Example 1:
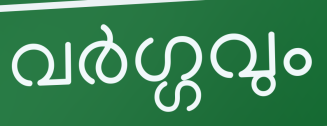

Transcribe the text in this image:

വർഗ്ഗവും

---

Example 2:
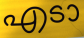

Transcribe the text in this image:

എടാ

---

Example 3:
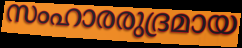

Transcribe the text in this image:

സംഹാരരുദ്രമായ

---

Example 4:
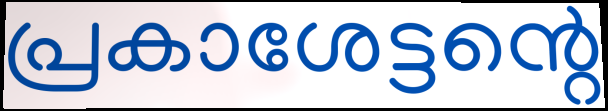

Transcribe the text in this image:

പ്രകാശേട്ടന്റെ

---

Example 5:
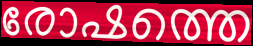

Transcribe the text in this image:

രോഷത്തെ